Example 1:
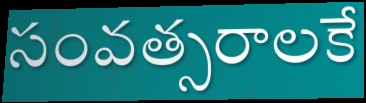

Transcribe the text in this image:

సంవత్సరాలకే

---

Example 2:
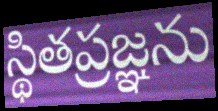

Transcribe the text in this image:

స్థితప్రజ్ఞను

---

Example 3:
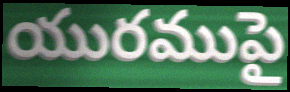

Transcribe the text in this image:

యురముపై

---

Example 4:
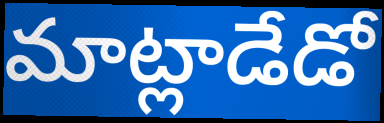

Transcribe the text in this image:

మాట్లాడేడో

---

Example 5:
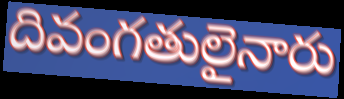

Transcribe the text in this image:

దివంగతులైనారు